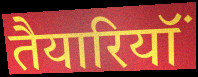
तैयारियॉं